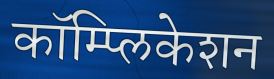
कॉम्प्लिकेशन